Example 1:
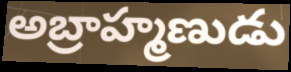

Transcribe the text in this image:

అబ్రాహ్మణుడు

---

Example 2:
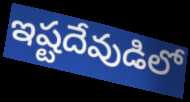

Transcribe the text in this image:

ఇష్టదేవుడిలో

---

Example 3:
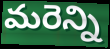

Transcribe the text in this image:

మరెన్ని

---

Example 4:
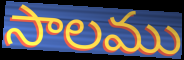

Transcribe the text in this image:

సాలము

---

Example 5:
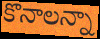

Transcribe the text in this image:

కొనాలన్నా